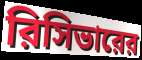
রিসিভারের